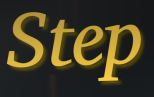
Step